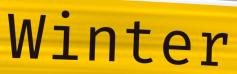
Winter